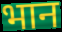
भान